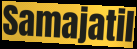
Samajatil